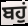
ਬਹੁਂ